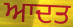
ਆਦਤ